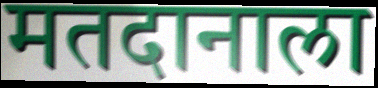
मतदानाला